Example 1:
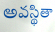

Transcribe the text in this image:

అవస్థితా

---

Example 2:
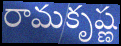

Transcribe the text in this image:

రామకృష్ణ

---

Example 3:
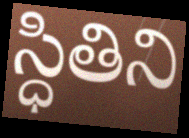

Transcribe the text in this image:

స్ధితిని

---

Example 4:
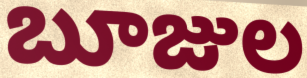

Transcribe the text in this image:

బూజుల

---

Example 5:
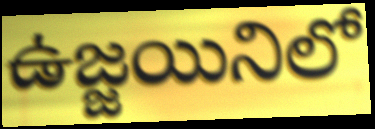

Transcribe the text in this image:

ఉజ్జయినిలో